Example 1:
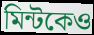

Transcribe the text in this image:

মিন্টকেও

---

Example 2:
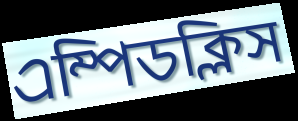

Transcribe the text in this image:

এম্পিডক্লিস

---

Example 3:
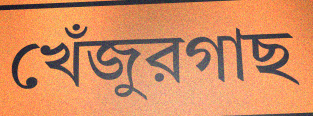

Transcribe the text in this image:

খেঁজুরগাছ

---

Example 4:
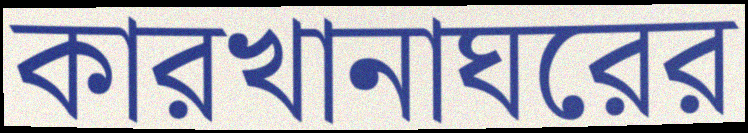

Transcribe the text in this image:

কারখানাঘরের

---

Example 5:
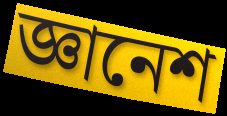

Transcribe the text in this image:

জ্ঞানেশ